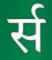
र्स